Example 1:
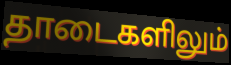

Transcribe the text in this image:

தாடைகளிலும்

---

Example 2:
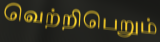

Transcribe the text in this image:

வெற்றிபெறும்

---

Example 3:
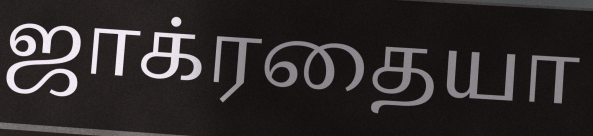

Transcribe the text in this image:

ஜாக்ரதையா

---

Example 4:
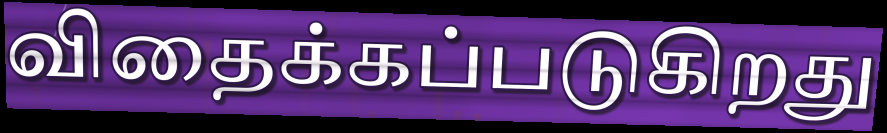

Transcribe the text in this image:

விதைக்கப்படுகிறது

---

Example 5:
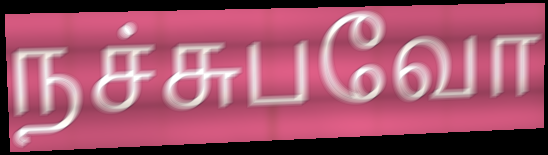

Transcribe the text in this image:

நச்சுபவோ